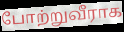
போற்றுவீராக